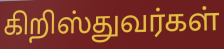
கிறிஸ்துவர்கள்